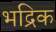
भद्रिक